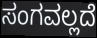
ಸಂಗವಲ್ಲದೆ